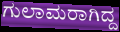
ಗುಲಾಮರಾಗಿದ್ದ